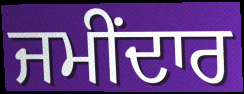
ਜਮੀਂਦਾਰ